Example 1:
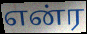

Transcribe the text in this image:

என்ர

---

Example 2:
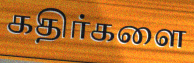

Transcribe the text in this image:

கதிர்களை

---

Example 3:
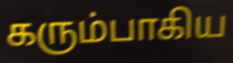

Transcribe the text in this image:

கரும்பாகிய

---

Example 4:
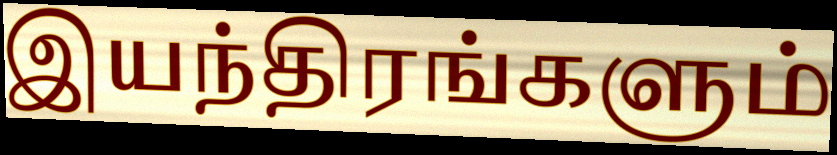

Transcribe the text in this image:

இயந்திரங்களும்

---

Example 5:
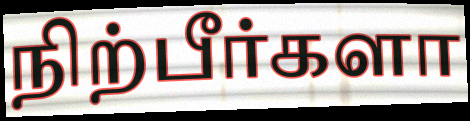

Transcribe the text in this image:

நிற்பீர்களா